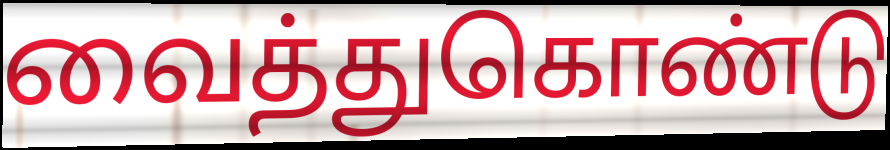
வைத்துகொண்டு